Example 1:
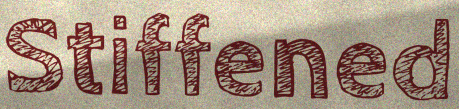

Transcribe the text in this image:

Stiffened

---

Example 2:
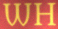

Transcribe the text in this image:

WH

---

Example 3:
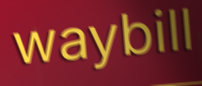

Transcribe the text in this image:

waybill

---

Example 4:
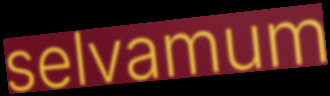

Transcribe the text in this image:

selvamum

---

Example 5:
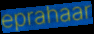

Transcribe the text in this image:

eprahaar